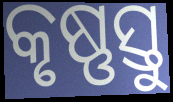
କୃଷ୍ଣସ୍ତୁ